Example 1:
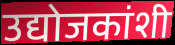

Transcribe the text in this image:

उद्योजकांशी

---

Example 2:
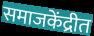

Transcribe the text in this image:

समाजकेंद्रीत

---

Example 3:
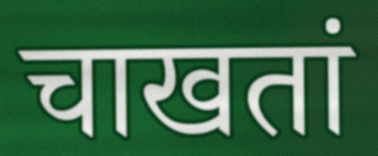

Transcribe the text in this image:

चाखतां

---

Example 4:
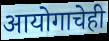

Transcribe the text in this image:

आयोगाचेही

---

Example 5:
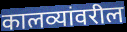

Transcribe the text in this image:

कालव्यांवरील